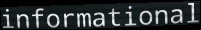
informational